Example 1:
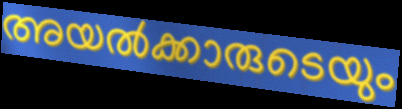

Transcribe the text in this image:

അയൽക്കാരുടെയും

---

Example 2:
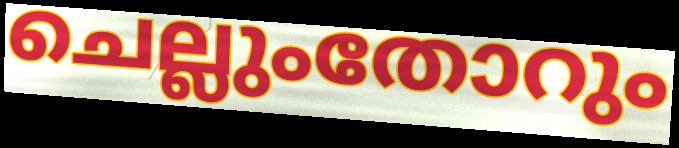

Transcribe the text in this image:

ചെല്ലുംതോറും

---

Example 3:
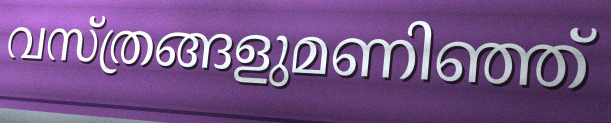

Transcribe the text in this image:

വസ്ത്രങ്ങളുമണിഞ്ഞ്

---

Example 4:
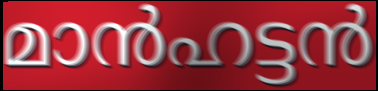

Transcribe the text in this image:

മാൻഹട്ടൻ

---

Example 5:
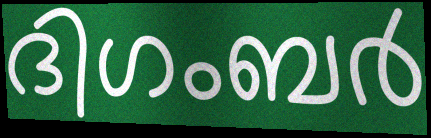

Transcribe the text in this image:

ദിഗംബർ